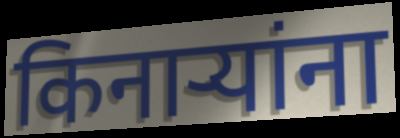
किनाऱ्यांना